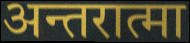
अन्तरात्मा